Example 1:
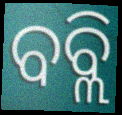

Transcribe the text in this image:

ବବ୍ଲି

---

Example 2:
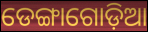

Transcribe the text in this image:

ଡେଙ୍ଗାଗୋଡ଼ିଆ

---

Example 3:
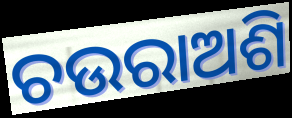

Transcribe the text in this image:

ଚଉରାଅଶି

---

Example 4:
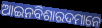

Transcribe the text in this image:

ଆଇନବିଶାରଦମାନେ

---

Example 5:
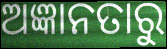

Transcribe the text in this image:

ଅଜ୍ଞାନତାରୁ